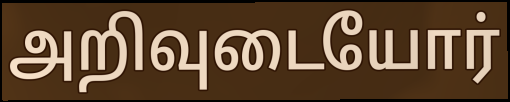
அறிவுடையோர்